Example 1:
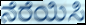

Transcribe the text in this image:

ನೆರೆಯಿಸಿ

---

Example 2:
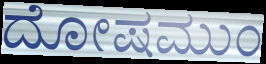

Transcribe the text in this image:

ದೋಷಮುಂ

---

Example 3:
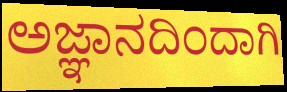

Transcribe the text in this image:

ಅಜ್ಞಾನದಿಂದಾಗಿ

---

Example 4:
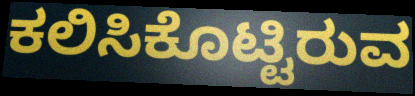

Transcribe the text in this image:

ಕಲಿಸಿಕೊಟ್ಟಿರುವ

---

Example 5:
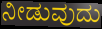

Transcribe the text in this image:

ನೀಡುವುದು